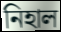
নিহাল